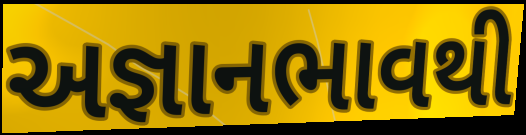
અજ્ઞાનભાવથી